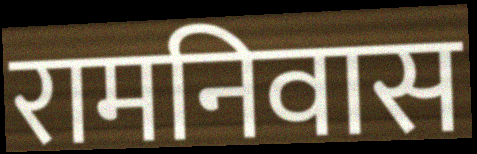
रामनिवास